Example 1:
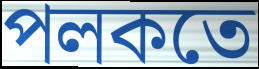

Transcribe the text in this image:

পলকতে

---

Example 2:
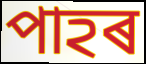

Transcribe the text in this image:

পাহৰ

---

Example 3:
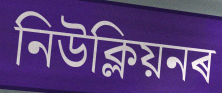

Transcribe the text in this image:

নিউক্লিয়নৰ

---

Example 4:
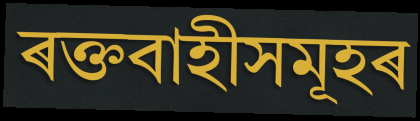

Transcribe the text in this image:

ৰক্তবাহীসমূহৰ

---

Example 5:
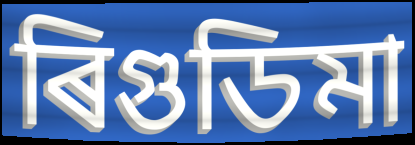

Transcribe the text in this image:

ৰিগুডিমা